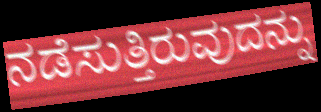
ನಡೆಸುತ್ತಿರುವುದನ್ನು